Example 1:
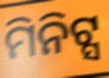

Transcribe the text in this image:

ମିନିଟ୍ସ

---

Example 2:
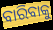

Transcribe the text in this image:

ବାରିବାକୁ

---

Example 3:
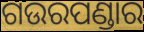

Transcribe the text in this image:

ଗଉରପଣ୍ଡାର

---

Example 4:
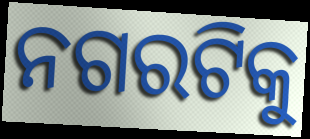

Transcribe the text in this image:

ନଗରଟିକୁ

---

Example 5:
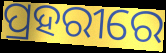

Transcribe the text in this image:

ପ୍ରହରୀରେ